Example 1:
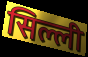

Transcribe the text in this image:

सिल्ली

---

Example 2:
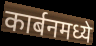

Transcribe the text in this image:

कार्बनमध्ये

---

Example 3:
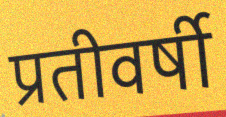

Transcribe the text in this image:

प्रतीवर्षी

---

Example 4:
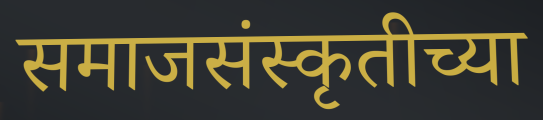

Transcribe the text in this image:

समाजसंस्कृतीच्या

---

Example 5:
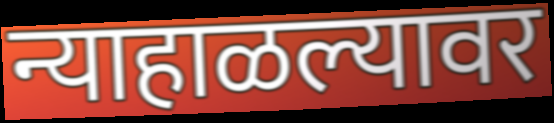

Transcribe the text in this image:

न्याहाळल्यावर